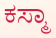
ಕಸ್ಮಾ